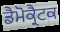
ਡੈਮੋਕ੍ਰੈਟਕ